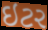
ઇટર